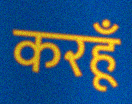
करहूँ